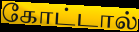
கோட்டால்